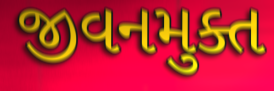
જીવનમુક્ત